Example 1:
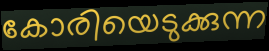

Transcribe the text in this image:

കോരിയെടുക്കുന്ന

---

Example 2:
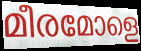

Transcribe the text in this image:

മീരമോളെ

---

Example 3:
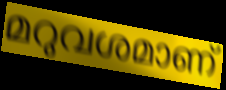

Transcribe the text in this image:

മറുവശമാണ്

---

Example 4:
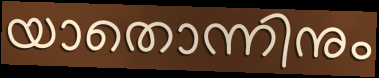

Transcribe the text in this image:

യാതൊന്നിനും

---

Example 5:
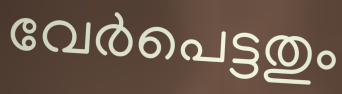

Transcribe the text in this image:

വേർപെട്ടതും